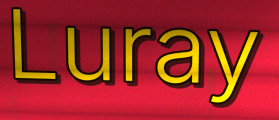
Luray